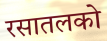
रसातलको